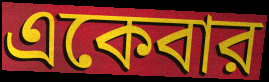
একেবার